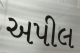
અપીલ